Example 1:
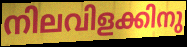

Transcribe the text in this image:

നിലവിളക്കിനു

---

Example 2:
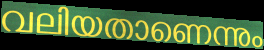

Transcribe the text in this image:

വലിയതാണെന്നും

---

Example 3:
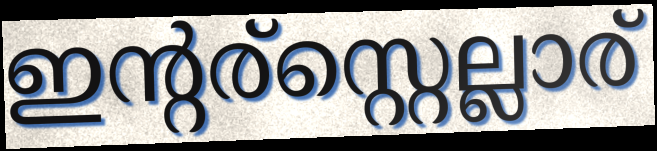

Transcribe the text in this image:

ഇന്റര്സ്റ്റെല്ലാര്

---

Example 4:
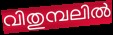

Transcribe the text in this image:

വിതുമ്പലിൽ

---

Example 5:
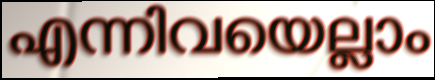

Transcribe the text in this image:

എന്നിവയെല്ലാം